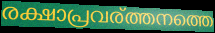
രക്ഷാപ്രവര്ത്തനത്തെ